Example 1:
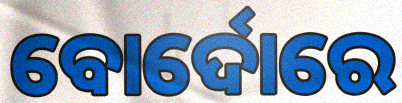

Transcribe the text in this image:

ବୋର୍ଦୋରେ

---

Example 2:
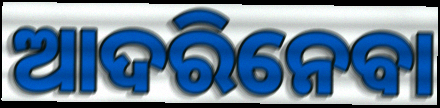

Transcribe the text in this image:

ଆଦରିନେବା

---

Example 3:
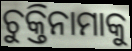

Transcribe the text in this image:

ଚୁକ୍ତିନାମାକୁ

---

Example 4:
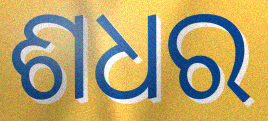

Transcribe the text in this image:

ଶଧର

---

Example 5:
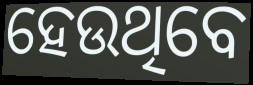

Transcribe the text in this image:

ହେଉଥିବେ